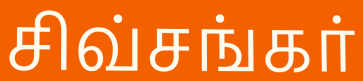
சிவ்சங்கர்